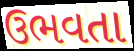
ઉભવતા